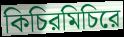
কিচিরমিচিরে